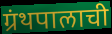
ग्रंथपालाची